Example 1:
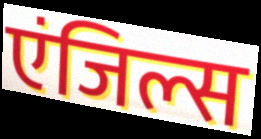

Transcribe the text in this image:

एंजिल्स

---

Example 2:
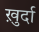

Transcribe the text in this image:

ख़ुर्दा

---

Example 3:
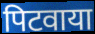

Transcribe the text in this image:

पिटवाया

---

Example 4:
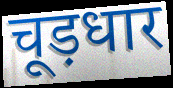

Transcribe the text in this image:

चूड़धार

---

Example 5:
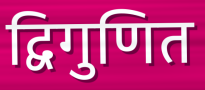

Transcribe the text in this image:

द्विगुणित